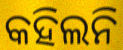
କହିଲନି